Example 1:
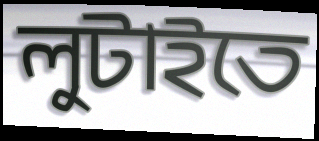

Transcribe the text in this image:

লুটাইতে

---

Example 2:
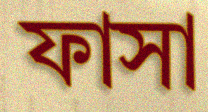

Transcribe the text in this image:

ফাসা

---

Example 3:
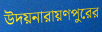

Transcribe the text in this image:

উদয়নারায়ণপুরের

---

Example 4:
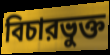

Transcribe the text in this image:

বিচারভুক্ত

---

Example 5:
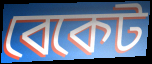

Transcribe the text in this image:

বেকেট